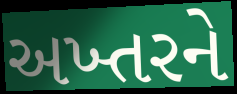
અખ્તરને